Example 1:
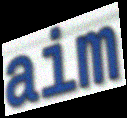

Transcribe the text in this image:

aim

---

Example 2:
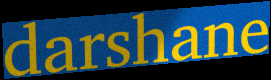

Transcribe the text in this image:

darshane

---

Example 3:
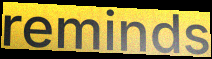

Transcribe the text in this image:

reminds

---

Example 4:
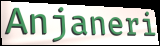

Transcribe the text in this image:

Anjaneri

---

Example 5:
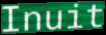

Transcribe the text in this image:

Inuit